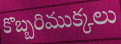
కొబ్బరిముక్కలు